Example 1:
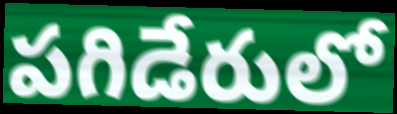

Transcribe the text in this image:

పగిడేరులో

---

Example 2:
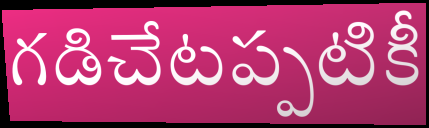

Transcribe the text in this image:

గడిచేటప్పటికీ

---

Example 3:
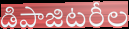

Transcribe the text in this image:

డిపాజిటరీల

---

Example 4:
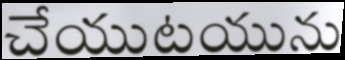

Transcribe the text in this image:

చేయుటయును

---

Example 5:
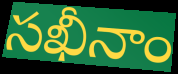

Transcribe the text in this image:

సఖీనాం